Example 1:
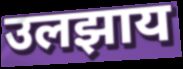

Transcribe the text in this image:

उलझाय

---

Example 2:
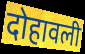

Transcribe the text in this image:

दोहावली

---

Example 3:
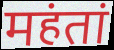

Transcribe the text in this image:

महंतां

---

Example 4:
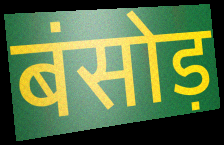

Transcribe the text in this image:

बंसोड़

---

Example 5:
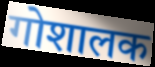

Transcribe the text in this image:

गोशालक